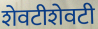
शेवटीशेवटी